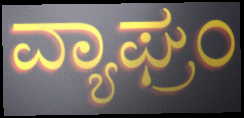
ವ್ಯಾಘ್ರಂ